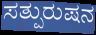
ಸತ್ಪುರುಷನ